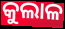
କୁଲାଳ